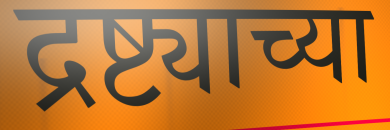
द्रष्ट्याच्या